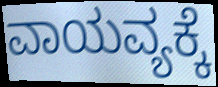
ವಾಯವ್ಯಕ್ಕೆ